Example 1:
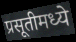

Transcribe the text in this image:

प्रसूतीमध्ये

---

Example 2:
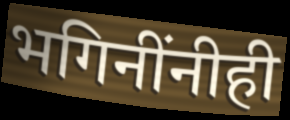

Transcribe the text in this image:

भगिनींनीही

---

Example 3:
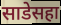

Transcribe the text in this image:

साडेसहा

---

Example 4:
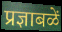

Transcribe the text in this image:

प्रज्ञाबळें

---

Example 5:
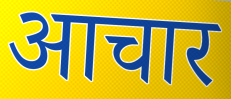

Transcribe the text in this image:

आचार